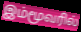
இம்மூவரில்